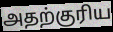
அதற்குரிய